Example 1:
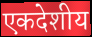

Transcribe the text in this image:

एकदेशीय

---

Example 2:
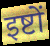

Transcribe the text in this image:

इष्टों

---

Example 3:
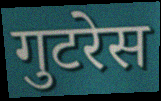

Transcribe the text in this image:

गुटरेस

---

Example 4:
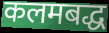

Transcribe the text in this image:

कलमबद्ध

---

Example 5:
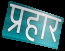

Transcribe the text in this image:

प्रहार